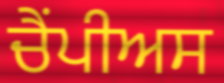
ਚੈਂਪੀਅਸ